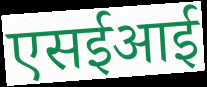
एसईआई